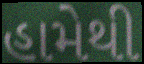
હામેથી